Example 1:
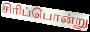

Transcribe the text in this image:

சிரிப்பொன்று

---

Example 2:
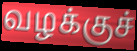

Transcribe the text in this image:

வழக்குச்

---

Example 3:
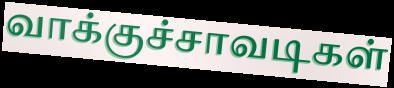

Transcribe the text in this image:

வாக்குச்சாவடிகள்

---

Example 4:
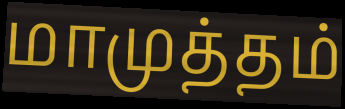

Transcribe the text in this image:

மாமுத்தம்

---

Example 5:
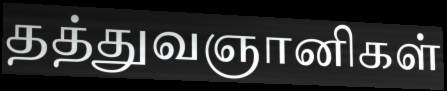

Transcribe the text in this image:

தத்துவஞானிகள்